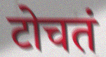
टोचतं